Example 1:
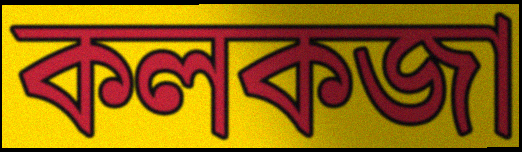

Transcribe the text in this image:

কলকজা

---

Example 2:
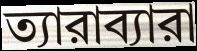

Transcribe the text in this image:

ত্যারাব্যারা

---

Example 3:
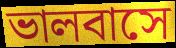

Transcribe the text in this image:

ভালবাসে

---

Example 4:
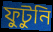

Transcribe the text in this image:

ফুটুনি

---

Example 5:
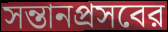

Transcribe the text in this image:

সন্তানপ্রসবের